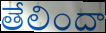
తేలిందా